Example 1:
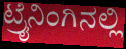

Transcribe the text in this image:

ಟ್ರೈನಿಂಗಿನಲ್ಲಿ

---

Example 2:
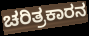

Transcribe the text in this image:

ಚರಿತ್ರಕಾರನ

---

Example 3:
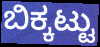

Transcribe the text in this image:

ಬಿಕ್ಕಟ್ಟು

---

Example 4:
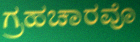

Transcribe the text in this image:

ಗ್ರಹಚಾರವೊ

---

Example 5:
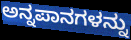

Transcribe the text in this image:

ಅನ್ನಪಾನಗಳನ್ನು